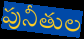
పునీతుల